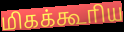
மிகக்கூரிய